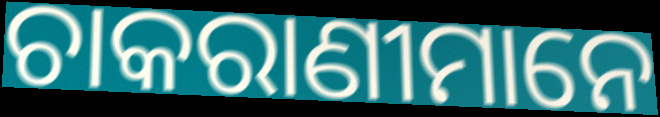
ଚାକରାଣୀମାନେ